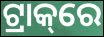
ଟ୍ରାକ୍‌ରେ